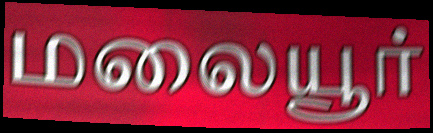
மலையூர்